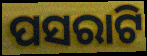
ପସରାଟି